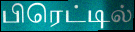
பிரெட்டில்